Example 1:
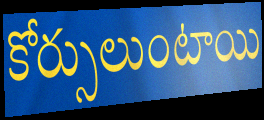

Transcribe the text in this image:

కోర్సులుంటాయి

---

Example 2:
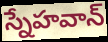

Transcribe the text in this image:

స్నేహవాన్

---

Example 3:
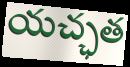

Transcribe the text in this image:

యచ్ఛత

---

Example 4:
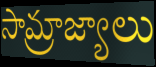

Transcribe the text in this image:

సామ్రాజ్యాలు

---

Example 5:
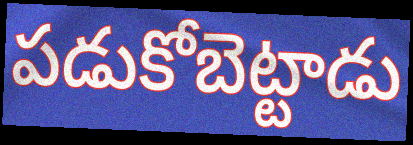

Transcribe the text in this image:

పడుకోబెట్టాడు